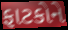
ફાટકોને